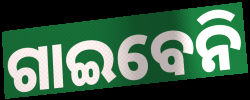
ଗାଇବେନି